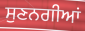
ਸੁਣਨਗੀਆਂ